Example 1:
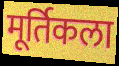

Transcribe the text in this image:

मूर्तिकला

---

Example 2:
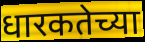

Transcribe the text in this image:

धारकतेच्या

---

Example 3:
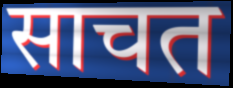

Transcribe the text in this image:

साचत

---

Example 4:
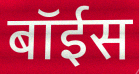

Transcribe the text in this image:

बॉईस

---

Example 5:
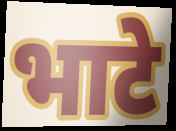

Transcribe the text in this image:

भाटे